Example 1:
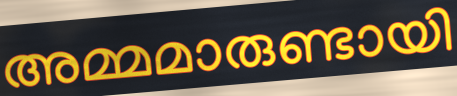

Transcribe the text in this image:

അമ്മമാരുണ്ടായി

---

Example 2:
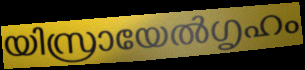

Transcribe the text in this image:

യിസ്രായേൽഗൃഹം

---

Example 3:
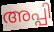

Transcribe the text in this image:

അപ്പി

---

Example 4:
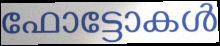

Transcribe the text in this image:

ഫോട്ടോകൾ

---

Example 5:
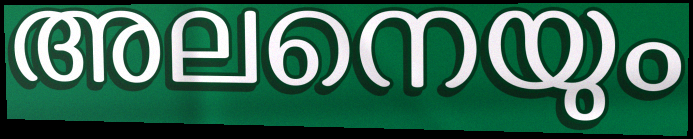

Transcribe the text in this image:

അലനെയും